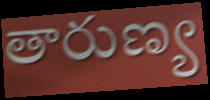
తారుణ్య